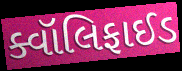
ક્વૉલિફાઈડ